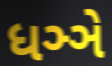
ધઞ્ઞે